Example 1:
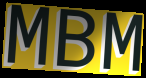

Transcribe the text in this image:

MBM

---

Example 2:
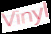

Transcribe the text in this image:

Vinyl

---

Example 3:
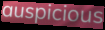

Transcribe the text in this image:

auspicious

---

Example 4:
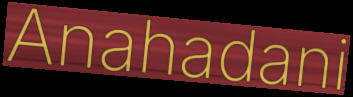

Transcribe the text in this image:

Anahadani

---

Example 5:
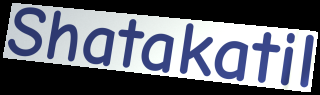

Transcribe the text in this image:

Shatakatil